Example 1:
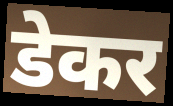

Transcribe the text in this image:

डेकर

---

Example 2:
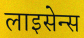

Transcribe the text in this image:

लाइसेन्स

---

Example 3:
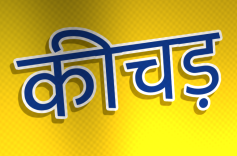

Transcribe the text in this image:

कीचड़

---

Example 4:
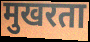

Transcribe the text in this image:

मुखरता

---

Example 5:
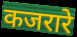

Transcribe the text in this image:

कजरारे